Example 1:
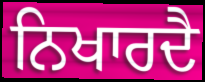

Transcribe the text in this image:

ਨਿਖਾਰਦੈ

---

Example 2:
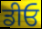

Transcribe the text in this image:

ਡੀਓ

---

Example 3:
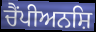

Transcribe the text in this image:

ਚੈਂਪੀਅਨਸ਼ਿ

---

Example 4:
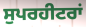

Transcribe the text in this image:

ਸੁਪਰਹੀਟਰਾਂ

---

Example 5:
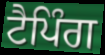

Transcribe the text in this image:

ਟੈਪਿੰਗ